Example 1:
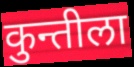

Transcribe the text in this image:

कुन्तीला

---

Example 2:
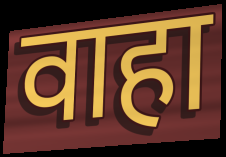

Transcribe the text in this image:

वाहा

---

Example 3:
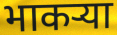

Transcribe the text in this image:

भाकऱ्या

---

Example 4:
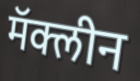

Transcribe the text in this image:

मॅक्लीन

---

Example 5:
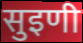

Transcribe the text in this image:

सुइणी